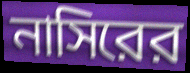
নাসিরের